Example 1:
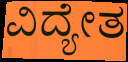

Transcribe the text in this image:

ವಿದ್ಯೇತ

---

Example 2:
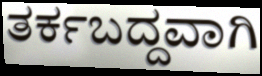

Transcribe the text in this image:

ತರ್ಕಬದ್ದವಾಗಿ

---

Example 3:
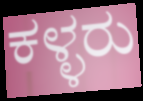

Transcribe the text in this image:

ಕಳ್ಳರು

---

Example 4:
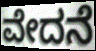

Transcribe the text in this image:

ವೇದನೆ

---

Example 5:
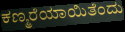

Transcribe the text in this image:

ಕಣ್ಮರೆಯಾಯಿತೆಂದು